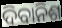
ଦିବାନିଶ